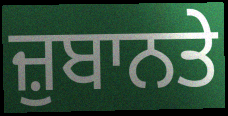
ਜ਼ੁਬਾਨਤੇ